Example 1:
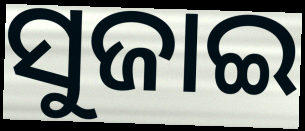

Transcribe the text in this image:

ସୁଜାଇ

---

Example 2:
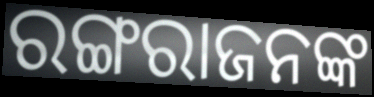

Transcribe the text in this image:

ରଙ୍ଗରାଜନଙ୍କ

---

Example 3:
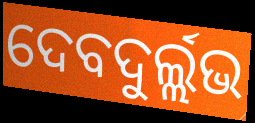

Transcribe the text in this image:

ଦେବଦୁର୍ଲ୍ଲଭ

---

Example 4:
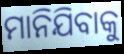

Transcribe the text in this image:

ମାନିଯିବାକୁ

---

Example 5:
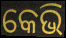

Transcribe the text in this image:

କେଭି